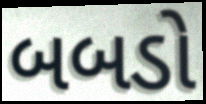
બબડો